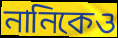
নানিকেও